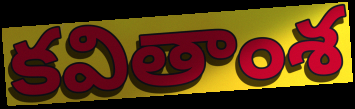
కవితాంశ